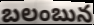
బలంబున